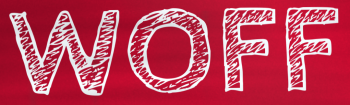
WOFF